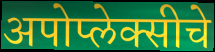
अपोप्लेक्सीचे